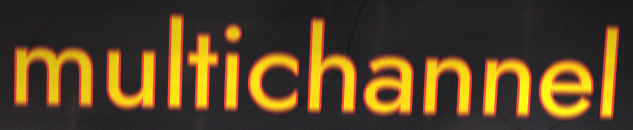
multichannel